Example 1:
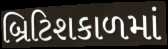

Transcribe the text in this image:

બ્રિટિશકાળમાં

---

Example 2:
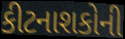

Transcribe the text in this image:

કીટનાશકોની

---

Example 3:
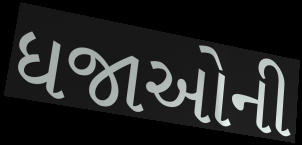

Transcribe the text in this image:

ધજાઓની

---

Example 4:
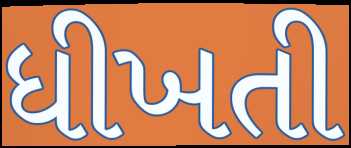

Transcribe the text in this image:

ધીખતી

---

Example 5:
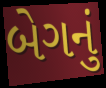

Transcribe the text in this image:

બેગનું